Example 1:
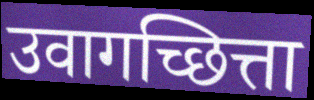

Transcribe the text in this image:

उवागच्छित्ता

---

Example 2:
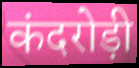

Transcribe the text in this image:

कंदरोड़ी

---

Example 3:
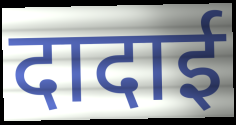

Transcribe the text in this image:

दादाई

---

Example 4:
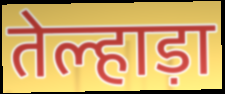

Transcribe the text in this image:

तेल्हाड़ा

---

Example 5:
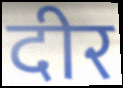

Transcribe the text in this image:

दीर